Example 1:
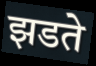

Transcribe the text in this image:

झडते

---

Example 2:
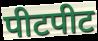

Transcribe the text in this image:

पीटपीट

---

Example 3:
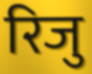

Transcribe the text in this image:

रिजु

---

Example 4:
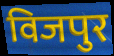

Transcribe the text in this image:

विजपुर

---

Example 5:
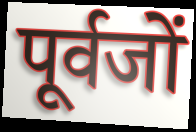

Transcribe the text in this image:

पूर्वजों